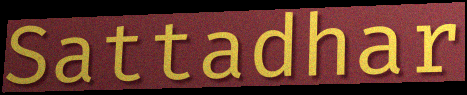
Sattadhar